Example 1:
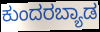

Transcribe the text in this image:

ಕುಂದರಬ್ಯಾಡ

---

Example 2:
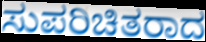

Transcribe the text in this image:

ಸುಪರಿಚಿತರಾದ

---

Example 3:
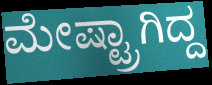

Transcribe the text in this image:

ಮೇಷ್ಟ್ರಾಗಿದ್ದ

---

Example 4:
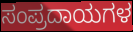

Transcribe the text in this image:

ಸಂಪ್ರದಾಯಗಳ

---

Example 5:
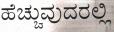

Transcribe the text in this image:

ಹೆಚ್ಚುವುದರಲ್ಲಿ